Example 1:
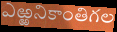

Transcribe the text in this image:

ఎఱ్ఱనికాంతిగల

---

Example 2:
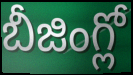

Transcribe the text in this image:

బీజింగ్లో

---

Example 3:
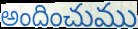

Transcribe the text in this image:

అందించుము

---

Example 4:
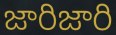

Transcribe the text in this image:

జారిజారి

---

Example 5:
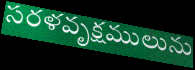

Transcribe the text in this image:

సరళవృక్షములును